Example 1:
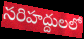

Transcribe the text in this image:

సరిహద్దులలో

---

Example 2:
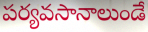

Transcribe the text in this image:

పర్యవసానాలుండే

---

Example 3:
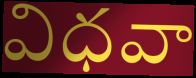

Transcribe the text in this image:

విధవా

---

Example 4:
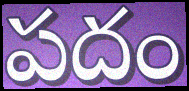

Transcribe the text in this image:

పదం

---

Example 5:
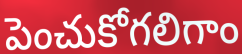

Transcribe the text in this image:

పెంచుకోగలిగాం